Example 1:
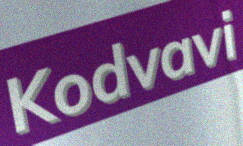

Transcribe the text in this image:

Kodvavi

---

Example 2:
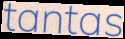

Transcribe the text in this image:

tantas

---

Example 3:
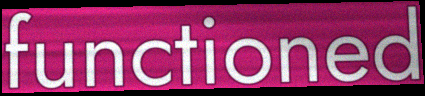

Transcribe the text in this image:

functioned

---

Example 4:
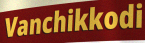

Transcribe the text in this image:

Vanchikkodi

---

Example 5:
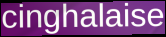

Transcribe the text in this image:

cinghalaise